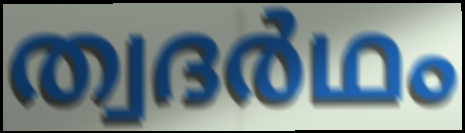
ത്വദർഥം